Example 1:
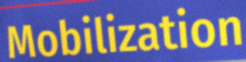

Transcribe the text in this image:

Mobilization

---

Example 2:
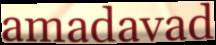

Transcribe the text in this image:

amadavad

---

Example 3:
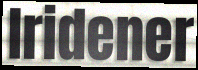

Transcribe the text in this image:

lridener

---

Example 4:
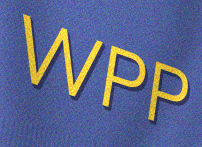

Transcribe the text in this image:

WPP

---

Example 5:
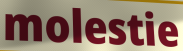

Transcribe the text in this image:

molestie